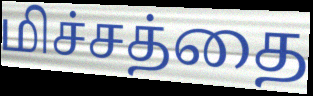
மிச்சத்தை